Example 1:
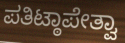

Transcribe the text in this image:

ಪತಿಟ್ಠಾಪೇತ್ವಾ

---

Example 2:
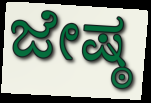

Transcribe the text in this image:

ಜೇಷ್ಠ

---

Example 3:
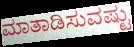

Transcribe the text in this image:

ಮಾತಾಡಿಸುವಷ್ಟು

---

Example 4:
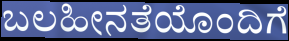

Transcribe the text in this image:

ಬಲಹೀನತೆಯೊಂದಿಗೆ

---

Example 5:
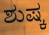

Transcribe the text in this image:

ಶುಷ್ಕ